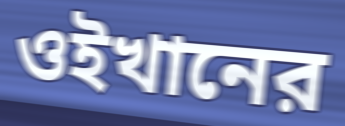
ওইখানের